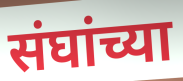
संघांच्या